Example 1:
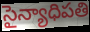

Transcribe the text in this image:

సైన్యాధిపతి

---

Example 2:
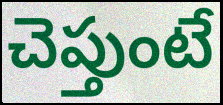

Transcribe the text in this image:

చెప్తుంటే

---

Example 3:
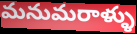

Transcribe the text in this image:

మనుమరాళ్ళు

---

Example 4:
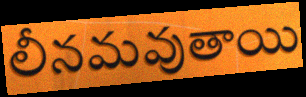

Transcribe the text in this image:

లీనమవుతాయి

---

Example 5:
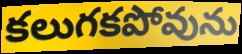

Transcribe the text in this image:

కలుగకపోవును